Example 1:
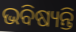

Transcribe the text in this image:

ଭବିଷ୍ୟନ୍ତି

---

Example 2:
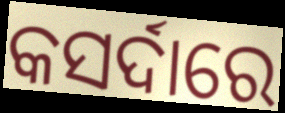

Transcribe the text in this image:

କସର୍ଦାରେ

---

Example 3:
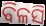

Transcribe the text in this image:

ବିଳସି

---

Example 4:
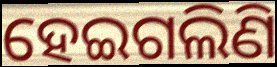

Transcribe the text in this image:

ହେଇଗଲିଣି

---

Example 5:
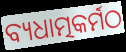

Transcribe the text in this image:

ବ୍ୟଧାତ୍ମକର୍ମଠ